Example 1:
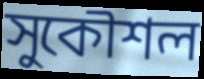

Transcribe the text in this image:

সুকৌশল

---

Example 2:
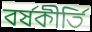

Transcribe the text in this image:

বর্ষকীর্তি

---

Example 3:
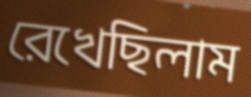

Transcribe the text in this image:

রেখেছিলাম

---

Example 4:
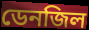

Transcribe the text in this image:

ডেনজিল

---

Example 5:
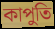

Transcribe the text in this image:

কাপুতি